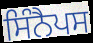
ਸਿੰਨੈਪਸ